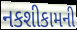
નકશીકામની